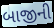
બાજીની